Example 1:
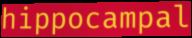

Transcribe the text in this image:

hippocampal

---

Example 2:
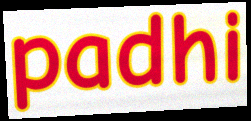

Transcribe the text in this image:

padhi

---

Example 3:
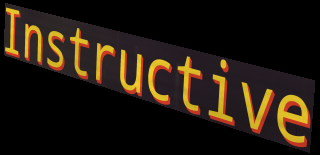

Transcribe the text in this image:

Instructive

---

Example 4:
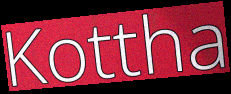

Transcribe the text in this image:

Kottha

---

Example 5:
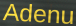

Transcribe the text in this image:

Adenu